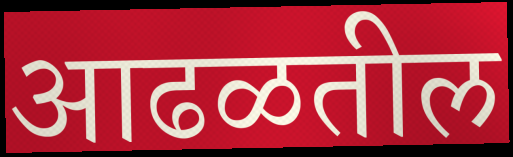
आढळतील